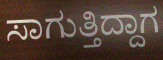
ಸಾಗುತ್ತಿದ್ದಾಗ